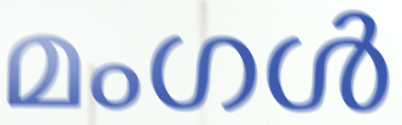
മംഗൾ